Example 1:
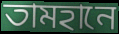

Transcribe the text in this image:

তামহানে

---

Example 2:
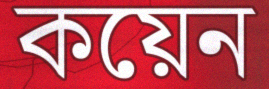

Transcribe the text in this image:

কয়েন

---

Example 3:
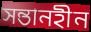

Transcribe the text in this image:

সন্তানহীন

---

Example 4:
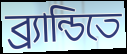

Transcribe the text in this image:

ব্র্যান্ডিতে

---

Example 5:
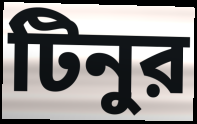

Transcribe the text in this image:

টিনুর